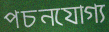
পচনযোগ্য